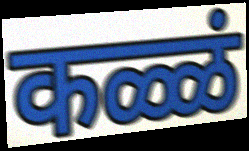
कळ्ळं